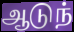
ஆடுந்